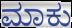
ಮಾಕು